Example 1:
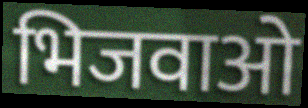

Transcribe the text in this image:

भिजवाओ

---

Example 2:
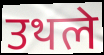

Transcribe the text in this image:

उथले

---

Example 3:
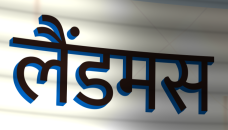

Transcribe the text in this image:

लैंडमस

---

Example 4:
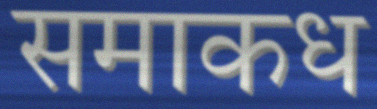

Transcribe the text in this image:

समाकध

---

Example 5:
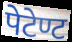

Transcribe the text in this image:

पेटेण्ट